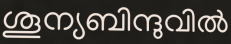
ശൂന്യബിന്ദുവിൽ